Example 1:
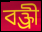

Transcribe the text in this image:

বক্ত্রী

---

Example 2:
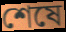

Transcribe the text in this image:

শেষে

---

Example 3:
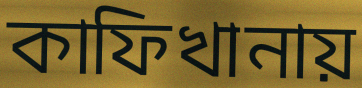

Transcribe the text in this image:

কাফিখানায়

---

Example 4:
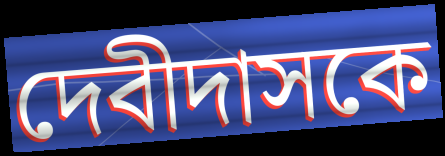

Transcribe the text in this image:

দেবীদাসকে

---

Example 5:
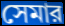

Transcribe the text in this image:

সেমার